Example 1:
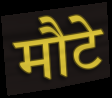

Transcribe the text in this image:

मौटे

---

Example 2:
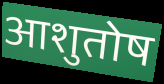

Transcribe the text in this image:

आशुतोष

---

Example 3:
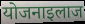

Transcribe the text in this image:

योजनाइलाज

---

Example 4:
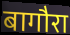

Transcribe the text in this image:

बागौरा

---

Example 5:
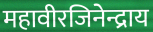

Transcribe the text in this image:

महावीरजिनेन्द्राय